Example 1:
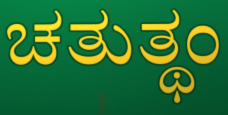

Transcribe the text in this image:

ಚತುತ್ಥಂ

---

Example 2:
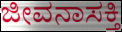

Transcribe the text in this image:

ಜೀವನಾಸಕ್ತಿ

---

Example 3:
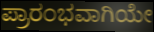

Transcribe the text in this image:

ಪ್ರಾರಂಭವಾಗಿಯೇ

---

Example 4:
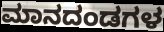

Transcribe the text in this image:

ಮಾನದಂಡಗಳ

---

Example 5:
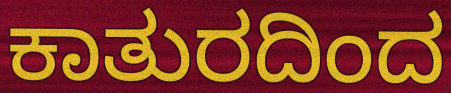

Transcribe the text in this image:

ಕಾತುರದಿಂದ